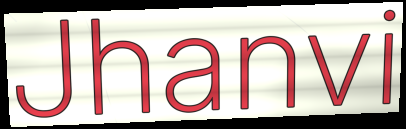
Jhanvi